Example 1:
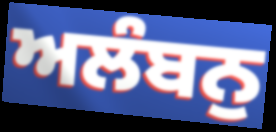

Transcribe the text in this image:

ਅਲੰਬਨੁ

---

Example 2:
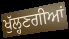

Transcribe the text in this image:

ਖੁੱਲ੍ਹਣਗੀਆਂ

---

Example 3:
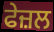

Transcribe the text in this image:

ਫੇਜ਼ਲ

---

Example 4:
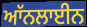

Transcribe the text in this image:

ਆੱਨਲਾਈਨ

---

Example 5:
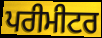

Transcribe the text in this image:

ਪਰੀਮੀਟਰ